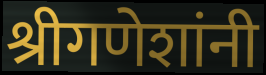
श्रीगणेशांनी